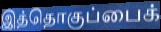
இத்தொகுப்பைக்